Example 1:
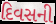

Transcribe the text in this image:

દિવસની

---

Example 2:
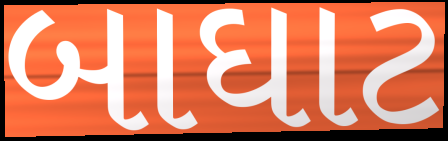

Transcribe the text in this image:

બાઘાટ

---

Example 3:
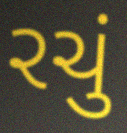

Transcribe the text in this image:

રચું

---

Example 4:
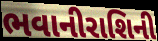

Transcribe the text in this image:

ભવાનીરાશિની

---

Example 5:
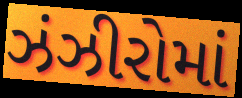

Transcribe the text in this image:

ઝંઝીરોમાં